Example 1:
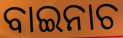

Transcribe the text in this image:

ବାଇନାଚ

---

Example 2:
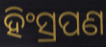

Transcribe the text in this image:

ହିଂସ୍ରପଣ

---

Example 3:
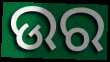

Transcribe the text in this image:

ଉର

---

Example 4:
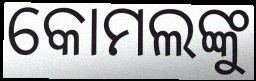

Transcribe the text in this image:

କୋମଲଙ୍କୁ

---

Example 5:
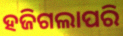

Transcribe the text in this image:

ହଜିଗଲାପରି